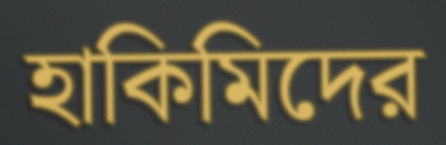
হাকিমিদের